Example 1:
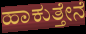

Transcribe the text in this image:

ಹಾಕುತ್ತೇನೆ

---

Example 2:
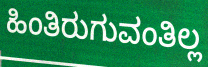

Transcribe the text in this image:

ಹಿಂತಿರುಗುವಂತಿಲ್ಲ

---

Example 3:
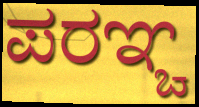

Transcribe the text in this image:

ಪರಞ್ಚ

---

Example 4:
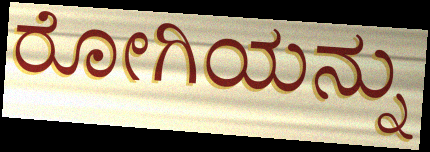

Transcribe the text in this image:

ರೋಗಿಯನ್ನು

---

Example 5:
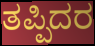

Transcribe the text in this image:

ತಪ್ಪಿದರ